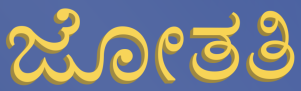
ಜೋತತಿ